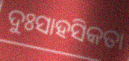
ଦୁଃସାହସିକତା